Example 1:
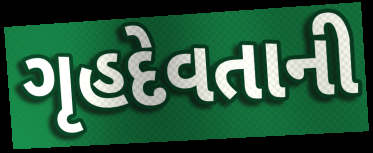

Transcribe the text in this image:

ગૃહદેવતાની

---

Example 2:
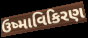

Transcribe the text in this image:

ઉષ્માવિકિરણ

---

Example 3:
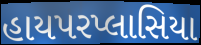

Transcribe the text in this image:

હાયપરપ્લાસિયા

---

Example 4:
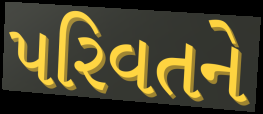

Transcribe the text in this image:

પરિવતને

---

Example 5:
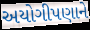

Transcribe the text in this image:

અયોગીપણાને